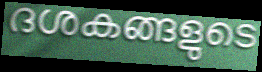
ദശകങ്ങളുടെ